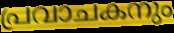
പ്രവാചകനും